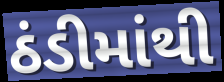
ઠંડીમાંથી